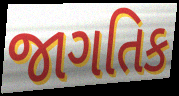
જાગતિક